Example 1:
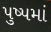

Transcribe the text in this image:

પુષ્પમાં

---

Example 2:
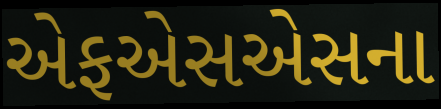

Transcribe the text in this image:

એફએસએસના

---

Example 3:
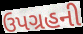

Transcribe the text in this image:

ઉપગ્રહની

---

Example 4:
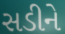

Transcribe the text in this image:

સડીને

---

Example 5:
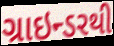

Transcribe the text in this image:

ગ્રાઇન્ડરથી